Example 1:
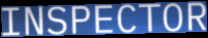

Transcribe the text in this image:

INSPECTOR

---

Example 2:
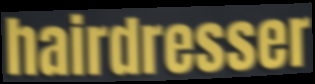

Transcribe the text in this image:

hairdresser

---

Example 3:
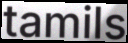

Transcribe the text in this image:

tamils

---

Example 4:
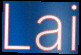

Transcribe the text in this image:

Lai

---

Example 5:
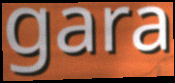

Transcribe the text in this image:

gara